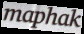
maphak